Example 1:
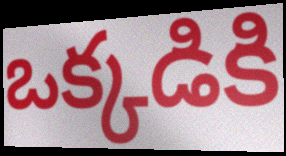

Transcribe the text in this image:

ఒక్కడికి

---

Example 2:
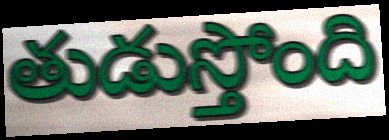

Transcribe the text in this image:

తుడుస్తోంది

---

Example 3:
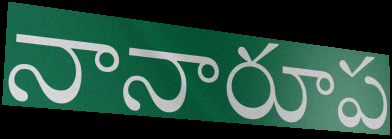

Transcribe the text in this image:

నానారూప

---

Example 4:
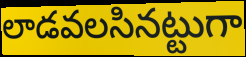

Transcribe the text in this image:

లాడవలసినట్టుగా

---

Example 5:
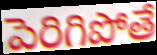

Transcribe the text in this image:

పెరిగిపోతే